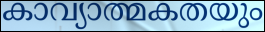
കാവ്യാത്മകതയും